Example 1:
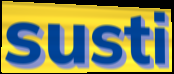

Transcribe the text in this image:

susti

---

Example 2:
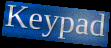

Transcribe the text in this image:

Keypad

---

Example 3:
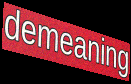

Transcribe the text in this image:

demeaning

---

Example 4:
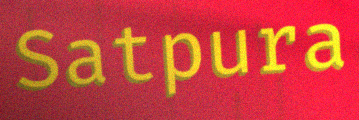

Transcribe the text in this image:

Satpura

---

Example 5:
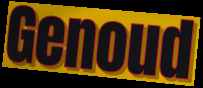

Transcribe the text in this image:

Genoud